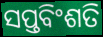
ସପ୍ତବିଂଶତି